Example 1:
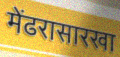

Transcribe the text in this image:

मेंढरासारखा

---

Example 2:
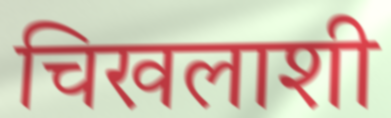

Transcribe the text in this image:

चिखलाशी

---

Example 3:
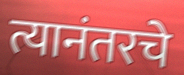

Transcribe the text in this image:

त्यानंतरचे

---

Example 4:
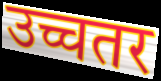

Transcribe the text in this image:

उच्चतर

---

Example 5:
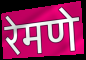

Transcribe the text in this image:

रेमणे